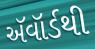
ઍવૉર્ડથી